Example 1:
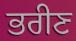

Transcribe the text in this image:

ਭਰੀਣ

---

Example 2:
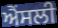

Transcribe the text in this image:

ਐਂਸਲੀ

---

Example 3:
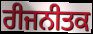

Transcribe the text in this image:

ਰੀਜਨੀਤਕ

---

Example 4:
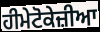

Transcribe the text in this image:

ਹੀਮੇਟੋਕੇਜ਼ੀਆ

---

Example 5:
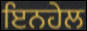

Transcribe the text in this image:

ਇਨਹੇਲ